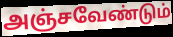
அஞ்சவேண்டும்